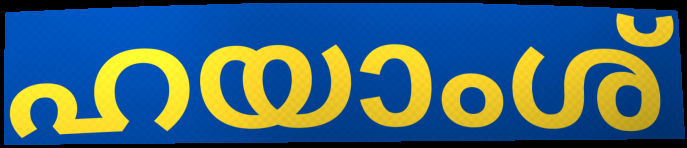
ഹയാംശ്